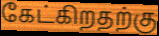
கேட்கிறதற்கு